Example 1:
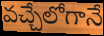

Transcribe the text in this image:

వచ్చేలోగానే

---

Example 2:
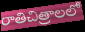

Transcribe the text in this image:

రాతిచిత్రాలలో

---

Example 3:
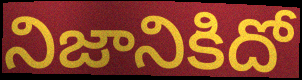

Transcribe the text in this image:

నిజానికిదో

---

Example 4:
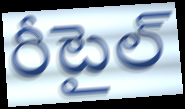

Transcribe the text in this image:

రీటైల్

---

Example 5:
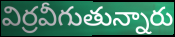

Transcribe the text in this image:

విర్రవీగుతున్నారు